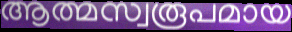
ആത്മസ്വരൂപമായ